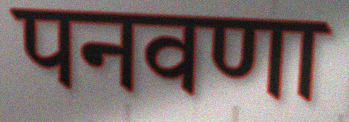
पनवणा